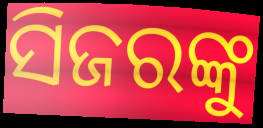
ସିଜରଙ୍କୁ